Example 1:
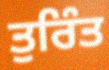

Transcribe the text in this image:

ਤੁਰਿੰਤ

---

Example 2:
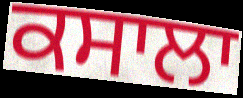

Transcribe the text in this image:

ਕਸਾਲਾ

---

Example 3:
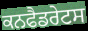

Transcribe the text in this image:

ਕਨਫੈਡਰੇਟਸ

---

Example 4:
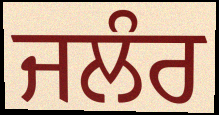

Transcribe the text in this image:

ਜਲੰਰ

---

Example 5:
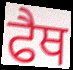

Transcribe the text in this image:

ਫੈਥ